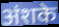
अंशके